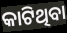
କାଟିଥିବା